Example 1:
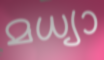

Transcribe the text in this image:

മധ്യാ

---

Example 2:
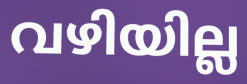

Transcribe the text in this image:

വഴിയില്ല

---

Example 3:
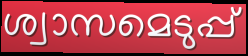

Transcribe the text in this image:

ശ്വാസമെടുപ്പ്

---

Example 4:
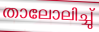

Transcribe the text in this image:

താലോലിച്ചു്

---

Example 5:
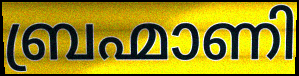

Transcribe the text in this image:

ബ്രഹ്മാണി